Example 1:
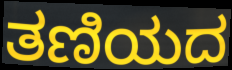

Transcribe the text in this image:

ತಣಿಯದ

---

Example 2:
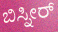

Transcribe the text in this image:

ಬಿಸ್ನೀರ್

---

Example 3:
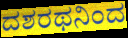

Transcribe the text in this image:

ದಶರಥನಿಂದ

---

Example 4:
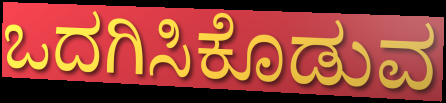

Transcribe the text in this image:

ಒದಗಿಸಿಕೊಡುವ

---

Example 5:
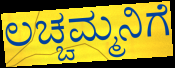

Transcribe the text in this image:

ಲಚ್ಚಮ್ಮನಿಗೆ